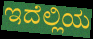
ಇದೆಲ್ಲಿಯ